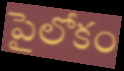
పైలోకం